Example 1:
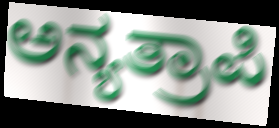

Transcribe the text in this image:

ಅನ್ಯತ್ರಾಪಿ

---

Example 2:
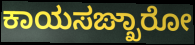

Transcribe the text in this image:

ಕಾಯಸಙ್ಖಾರೋ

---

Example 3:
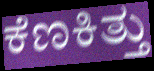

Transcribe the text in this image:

ಕೆಣಕಿತ್ತು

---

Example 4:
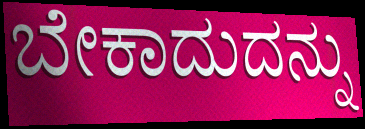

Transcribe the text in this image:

ಬೇಕಾದುದನ್ನು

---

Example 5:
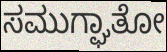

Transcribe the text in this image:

ಸಮುಗ್ಘಾತೋ